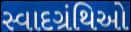
સ્વાદગ્રંથિઓ